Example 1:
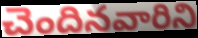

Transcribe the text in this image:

చెందినవారిని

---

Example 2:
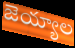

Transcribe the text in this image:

జెయ్యాల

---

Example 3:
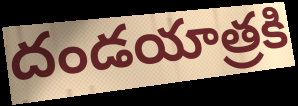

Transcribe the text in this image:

దండయాత్రకి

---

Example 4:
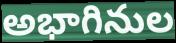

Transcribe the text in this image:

అభాగినుల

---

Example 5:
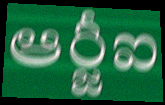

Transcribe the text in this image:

ఆర్జీఐ